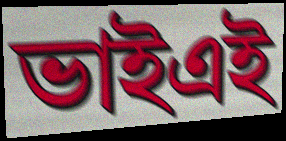
ভাইএই